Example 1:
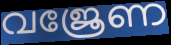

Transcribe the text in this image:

വജ്രേണ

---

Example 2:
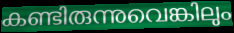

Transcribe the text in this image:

കണ്ടിരുന്നുവെങ്കിലും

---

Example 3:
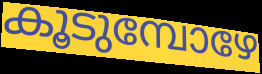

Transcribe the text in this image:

കൂടുമ്പോഴേ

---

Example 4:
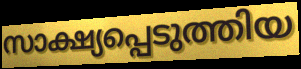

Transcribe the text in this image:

സാക്ഷ്യപ്പെടുത്തിയ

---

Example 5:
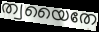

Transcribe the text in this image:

ത്വയൈതേ